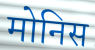
मोनिस